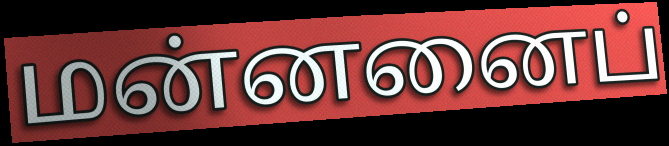
மன்னனைப்